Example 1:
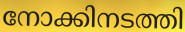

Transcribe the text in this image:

നോക്കിനടത്തി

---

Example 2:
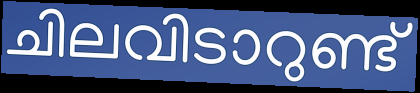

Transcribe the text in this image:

ചിലവിടാറുണ്ട്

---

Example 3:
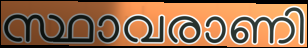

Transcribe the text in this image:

സ്ഥാവരാണി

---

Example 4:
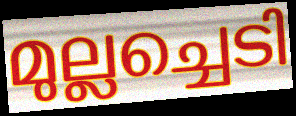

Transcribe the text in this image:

മുല്ലച്ചെടി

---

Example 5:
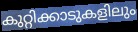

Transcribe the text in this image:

കുറ്റിക്കാടുകളിലും